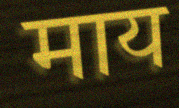
माय